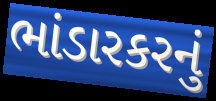
ભાંડારકરનું